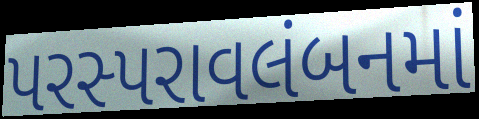
પરસ્પરાવલંબનમાં